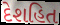
દેશહિત